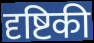
दृष्टिकी